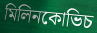
মিলিনকোভিচ